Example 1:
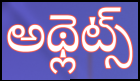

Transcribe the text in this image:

అథ్లెట్స్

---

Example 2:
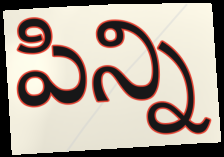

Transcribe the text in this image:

పిన్ని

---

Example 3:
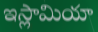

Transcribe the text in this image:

ఇస్లామియా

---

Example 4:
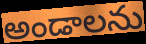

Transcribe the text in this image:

అండాలను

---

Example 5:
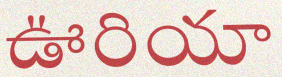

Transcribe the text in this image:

ఊరియా